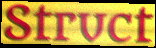
Struct